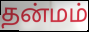
தன்மம்